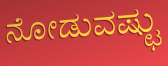
ನೋಡುವಷ್ಟು